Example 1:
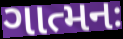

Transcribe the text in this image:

ગાત્મનઃ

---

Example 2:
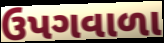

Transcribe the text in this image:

ઉપગવાળા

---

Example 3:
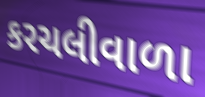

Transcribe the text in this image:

કરચલીવાળા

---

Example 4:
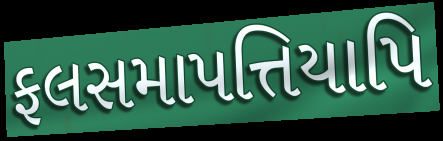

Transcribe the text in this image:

ફલસમાપત્તિયાપિ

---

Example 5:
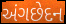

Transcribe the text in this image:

અંગછેદન